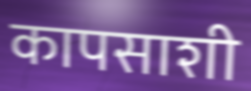
कापसाशी